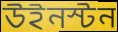
উইনস্টন